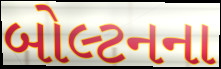
બોલ્ટનના